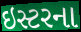
ઇસ્ટરના